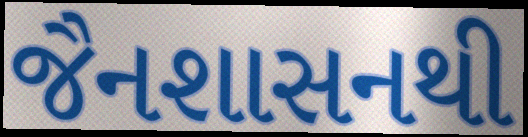
જૈનશાસનથી